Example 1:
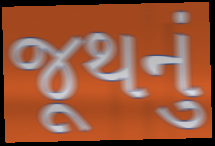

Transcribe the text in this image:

જૂથનું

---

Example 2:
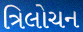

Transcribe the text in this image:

ત્રિલોચન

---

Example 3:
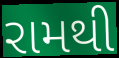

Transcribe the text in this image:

રામથી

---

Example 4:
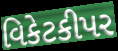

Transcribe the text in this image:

વિકેટકીપર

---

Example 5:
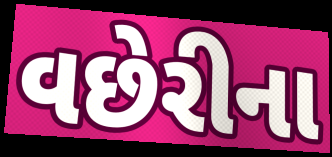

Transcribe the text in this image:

વછેરીના